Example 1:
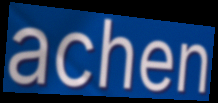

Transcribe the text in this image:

achen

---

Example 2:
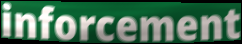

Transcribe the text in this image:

inforcement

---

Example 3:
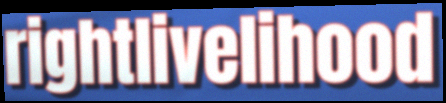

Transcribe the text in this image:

rightlivelihood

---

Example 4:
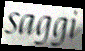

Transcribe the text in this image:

saggi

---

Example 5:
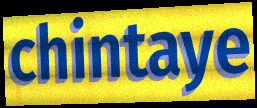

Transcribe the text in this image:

chintaye